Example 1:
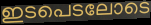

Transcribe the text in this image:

ഇടപെടലോടെ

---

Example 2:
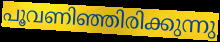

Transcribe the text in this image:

പൂവണിഞ്ഞിരിക്കുന്നു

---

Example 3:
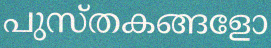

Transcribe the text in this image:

പുസ്തകങ്ങളോ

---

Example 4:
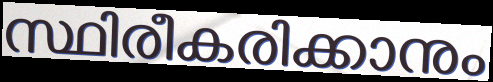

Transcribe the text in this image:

സ്ഥിരീകരിക്കാനും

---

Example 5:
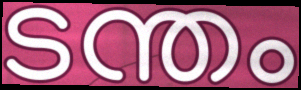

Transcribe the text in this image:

ടന്തം